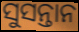
ସୁସନ୍ତାନ